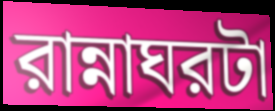
রান্নাঘরটা